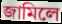
জামিলে